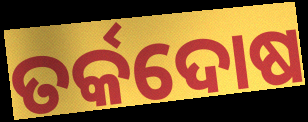
ତର୍କଦୋଷ